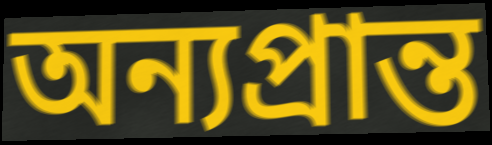
অন্যপ্রান্ত